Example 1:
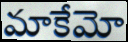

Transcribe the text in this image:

మాకేమో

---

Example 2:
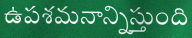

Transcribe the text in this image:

ఉపశమనాన్నిస్తుంది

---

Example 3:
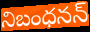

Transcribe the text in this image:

నిబంధనన్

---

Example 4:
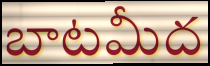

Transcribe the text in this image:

బాటమీద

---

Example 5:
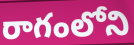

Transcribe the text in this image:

రాగంలోని